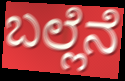
ಬಲ್ಲೆನೆ